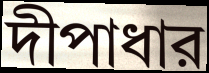
দীপাধার